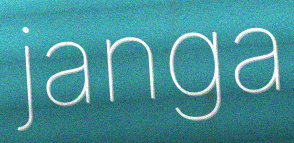
janga